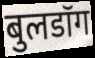
बुलडॉग